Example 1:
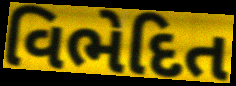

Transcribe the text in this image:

વિભેદિત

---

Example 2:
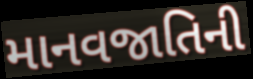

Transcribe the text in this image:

માનવજાતિની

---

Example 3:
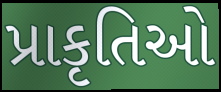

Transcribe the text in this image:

પ્રાકૃતિઓ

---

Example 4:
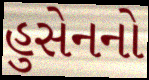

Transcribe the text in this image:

હુસેનનો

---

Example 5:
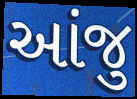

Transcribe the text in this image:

આંજુ